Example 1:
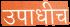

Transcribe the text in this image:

उपाधीच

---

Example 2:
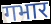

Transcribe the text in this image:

गभार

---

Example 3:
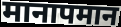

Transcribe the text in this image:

मानापमान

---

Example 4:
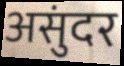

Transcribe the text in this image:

असुंदर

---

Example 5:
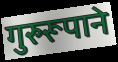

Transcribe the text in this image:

गुरुरूपाने